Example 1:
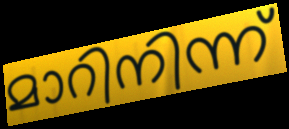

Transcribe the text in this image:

മാറിനിന്ന്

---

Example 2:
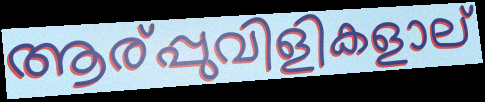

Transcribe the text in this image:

ആര്പ്പുവിളികളാല്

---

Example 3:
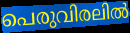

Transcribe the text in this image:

പെരുവിരലിൽ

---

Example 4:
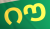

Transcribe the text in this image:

റൗ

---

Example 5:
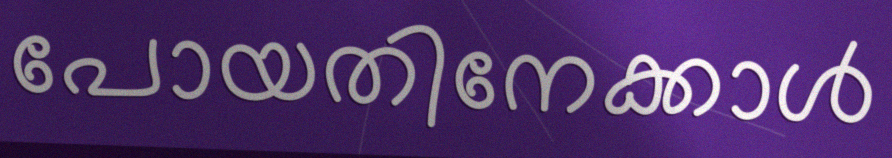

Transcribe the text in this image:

പോയതിനേക്കാൾ